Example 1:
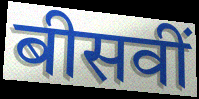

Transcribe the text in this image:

बीसवीं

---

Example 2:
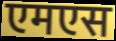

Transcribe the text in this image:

एमएस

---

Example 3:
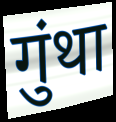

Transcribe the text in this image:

गुंथा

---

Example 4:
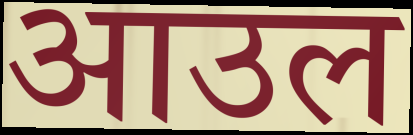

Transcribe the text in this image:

आउल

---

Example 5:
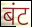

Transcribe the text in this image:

बंट